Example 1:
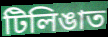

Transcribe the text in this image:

টিলিঙাত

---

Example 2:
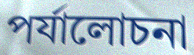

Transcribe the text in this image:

পৰ্যালোচনা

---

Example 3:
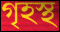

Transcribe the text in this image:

গৃহস্থ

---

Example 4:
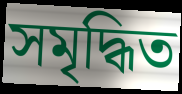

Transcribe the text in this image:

সমৃদ্ধিত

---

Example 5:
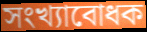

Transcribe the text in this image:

সংখ্যাবোধক